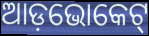
ଆଡ଼ଭୋକେଟ୍